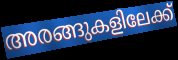
അരങ്ങുകളിലേക്ക്